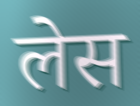
लेस